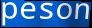
peson